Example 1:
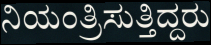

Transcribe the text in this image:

ನಿಯಂತ್ರಿಸುತ್ತಿದ್ದರು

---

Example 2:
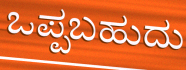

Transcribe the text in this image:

ಒಪ್ಪಬಹುದು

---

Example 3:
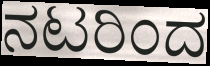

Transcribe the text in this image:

ನಟರಿಂದ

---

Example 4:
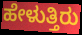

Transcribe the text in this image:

ಹೇಳುತ್ತಿರು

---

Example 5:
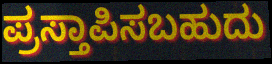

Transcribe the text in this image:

ಪ್ರಸ್ತಾಪಿಸಬಹುದು